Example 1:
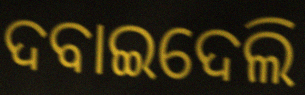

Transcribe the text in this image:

ଦବାଇଦେଲି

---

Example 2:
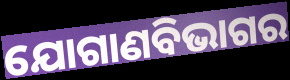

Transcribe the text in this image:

ଯୋଗାଣବିଭାଗର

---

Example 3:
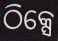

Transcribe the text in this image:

ଠିକ୍ସେ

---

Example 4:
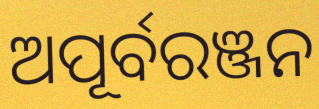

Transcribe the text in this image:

ଅପୂର୍ବରଞ୍ଜନ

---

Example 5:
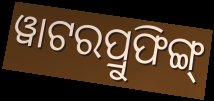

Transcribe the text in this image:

ୱାଟରପ୍ରୁଫିଙ୍ଗ୍